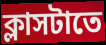
ক্লাসটাতে